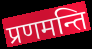
प्रणमन्ति